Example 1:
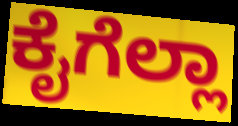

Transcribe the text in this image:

ಕೈಗೆಲ್ಲಾ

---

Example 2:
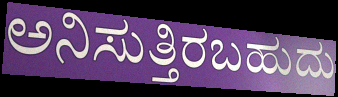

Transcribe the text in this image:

ಅನಿಸುತ್ತಿರಬಹುದು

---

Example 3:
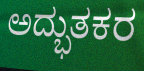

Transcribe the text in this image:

ಅದ್ಭುತಕರ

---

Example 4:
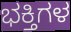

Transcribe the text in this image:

ಭಕ್ತಿಗಳ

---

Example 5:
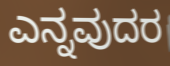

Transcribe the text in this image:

ಎನ್ನವುದರ